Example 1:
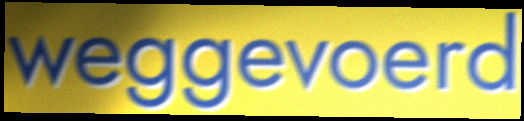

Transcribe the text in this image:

weggevoerd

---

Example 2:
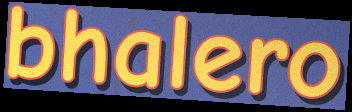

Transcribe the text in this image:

bhalero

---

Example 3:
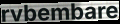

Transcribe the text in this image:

rvbembare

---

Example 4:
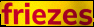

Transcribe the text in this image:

friezes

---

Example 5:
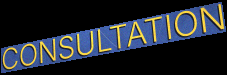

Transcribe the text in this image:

CONSULTATION